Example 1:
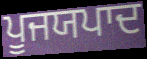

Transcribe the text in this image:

ਪੂਜਯਪਾਦ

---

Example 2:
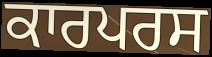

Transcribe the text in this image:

ਕਾਰਪਰਸ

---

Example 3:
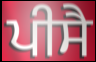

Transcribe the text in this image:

ਪੀਸੈ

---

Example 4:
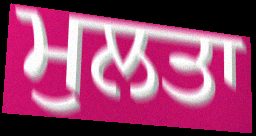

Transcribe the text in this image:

ਮੁਲਤਾ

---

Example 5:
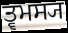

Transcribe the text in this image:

ਤ੍ਵਮਸ੍ਯ